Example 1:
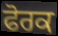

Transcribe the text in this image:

ਫੋਰਕ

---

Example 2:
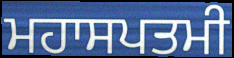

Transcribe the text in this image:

ਮਹਾਸਪਤਮੀ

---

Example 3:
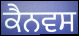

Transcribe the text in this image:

ਕੈਨਵਸ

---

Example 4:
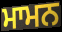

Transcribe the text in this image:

ਮਾਮਨ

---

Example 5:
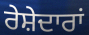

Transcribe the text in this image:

ਰੇਸ਼ੇਦਾਰਾਂ